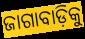
ଜାଗାବାଡ଼ିକୁ